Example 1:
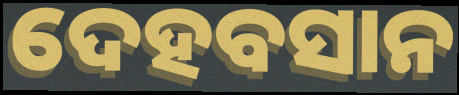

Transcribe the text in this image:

ଦେହବସାନ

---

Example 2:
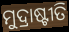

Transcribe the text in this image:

ମୁଦ୍ରାଷ୍ଟୀତି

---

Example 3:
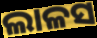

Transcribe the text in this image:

ଲାଳସ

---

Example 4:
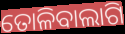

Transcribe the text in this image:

ତୋଳିବାଲାଗି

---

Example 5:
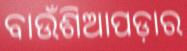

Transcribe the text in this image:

ବାଉଁଶିଆପଡ଼ାର